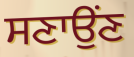
ਸਣਾਉਂਣ